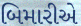
બિમારીએ